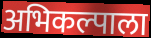
अभिकल्पाला